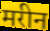
मरीन